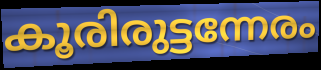
കൂരിരുട്ടന്നേരം